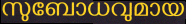
സുബോധവുമായ